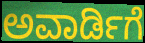
ಅವಾರ್ಡಿಗೆ